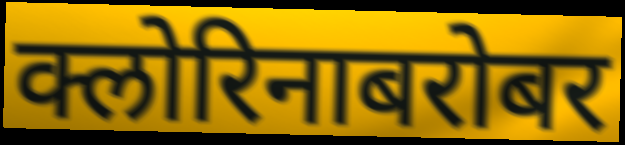
क्लोरिनाबरोबर